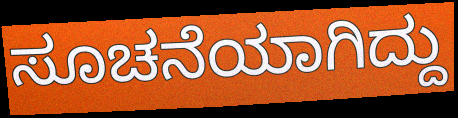
ಸೂಚನೆಯಾಗಿದ್ದು